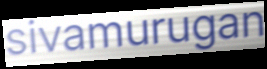
sivamurugan